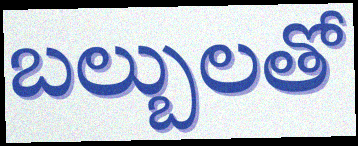
బల్బులతో